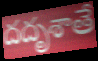
దదృశాతే